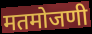
मतमोजणी